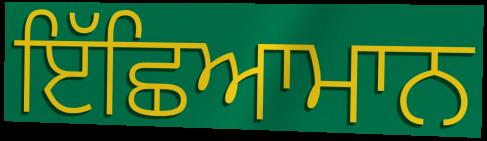
ਇੱਛਿਆਮਾਨ